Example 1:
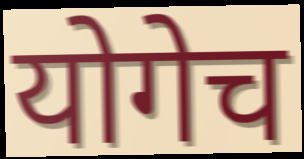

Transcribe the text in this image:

योगेच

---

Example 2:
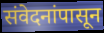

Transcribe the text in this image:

संवेदनांपासून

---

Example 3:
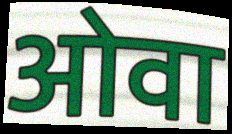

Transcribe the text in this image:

ओवा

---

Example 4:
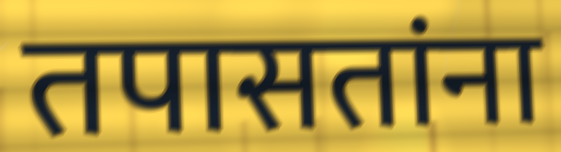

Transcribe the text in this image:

तपासतांना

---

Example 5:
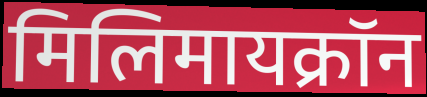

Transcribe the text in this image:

मिलिमायक्रॉन